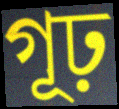
গূঢ়